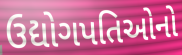
ઉદ્યોગપતિઓનો